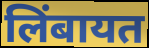
लिंबायत